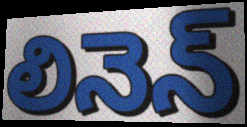
లినెన్